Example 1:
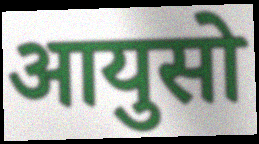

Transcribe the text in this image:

आयुसो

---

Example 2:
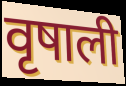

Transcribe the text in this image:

वृषाली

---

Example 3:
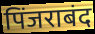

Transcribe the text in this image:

पिंजराबंद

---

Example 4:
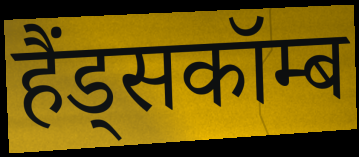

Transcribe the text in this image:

हैंड्सकॉम्ब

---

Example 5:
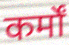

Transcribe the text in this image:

कर्मों